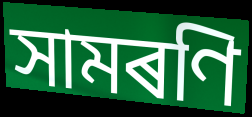
সামৰণি